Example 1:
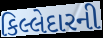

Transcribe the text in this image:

કિલ્લેદારની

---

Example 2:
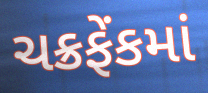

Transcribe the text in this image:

ચક્રફેંકમાં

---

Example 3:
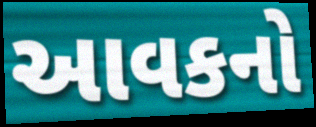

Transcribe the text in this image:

આવકનો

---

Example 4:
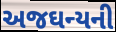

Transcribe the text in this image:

અજઘન્યની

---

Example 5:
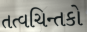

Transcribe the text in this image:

તત્વચિન્તકો